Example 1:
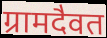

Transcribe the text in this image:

ग्रामदैवत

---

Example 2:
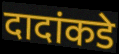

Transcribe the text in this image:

दादांकडे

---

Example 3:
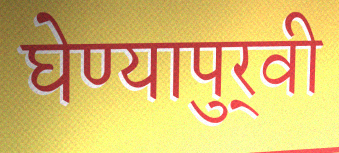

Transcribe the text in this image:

घेण्यापुर्वी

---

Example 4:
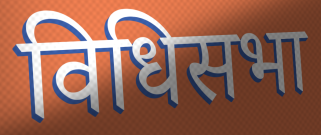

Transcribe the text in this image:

विधिसभा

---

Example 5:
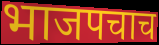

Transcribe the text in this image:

भाजपचाच